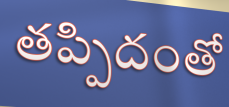
తప్పిదంతో